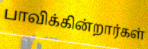
பாவிக்கின்றார்கள்